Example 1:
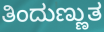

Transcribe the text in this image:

ತಿಂದುಣ್ಣುತ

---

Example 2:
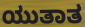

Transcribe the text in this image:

ಯುತಾತ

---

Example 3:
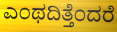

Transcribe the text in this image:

ಎಂಥದಿತ್ತೆಂದರೆ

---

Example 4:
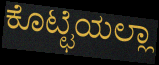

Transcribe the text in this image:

ಕೊಟ್ಟೆಯಲ್ಲಾ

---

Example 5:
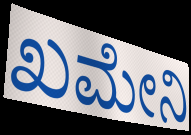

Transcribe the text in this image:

ಖಮೇನಿ